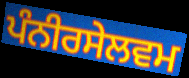
ਪੰਨੀਰਸੇਲਵਮ